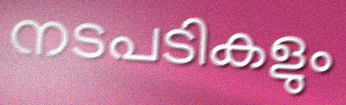
നടപടികളും